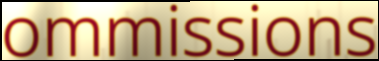
ommissions